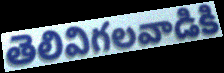
తెలివిగలవాడికి